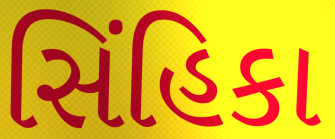
સિંહિકા